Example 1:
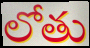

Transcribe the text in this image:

లోతు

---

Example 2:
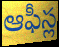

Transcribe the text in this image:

ఆఫీస్ల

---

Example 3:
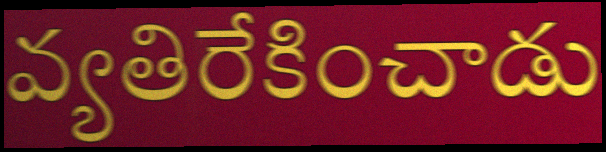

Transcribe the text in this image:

వ్యతిరేకించాడు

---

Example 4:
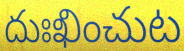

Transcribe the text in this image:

దుఃఖించుట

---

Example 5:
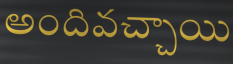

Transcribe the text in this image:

అందివచ్చాయి